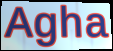
Agha